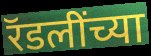
रॅडलींच्या